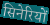
सिनेरियों